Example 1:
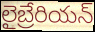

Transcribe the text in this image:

లైబ్రేరియన్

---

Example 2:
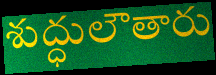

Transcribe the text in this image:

శుద్ధులౌతారు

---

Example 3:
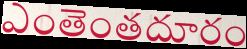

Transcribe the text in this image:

ఎంతెంతదూరం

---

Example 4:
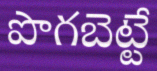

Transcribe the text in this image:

పొగబెట్టే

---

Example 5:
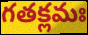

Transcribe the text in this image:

గతక్లమః